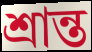
শ্রান্ত